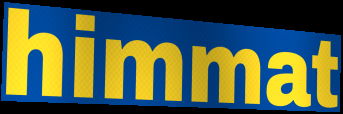
himmat